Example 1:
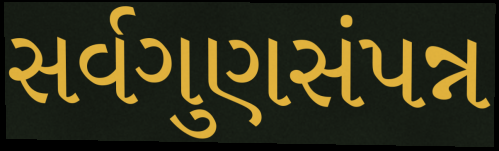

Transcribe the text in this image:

સર્વગુણસંપન્ન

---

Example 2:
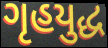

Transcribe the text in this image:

ગૃહયુદ્ધ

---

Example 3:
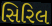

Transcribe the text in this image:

સિરિલ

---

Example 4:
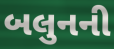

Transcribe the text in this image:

બલુનની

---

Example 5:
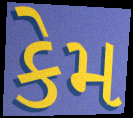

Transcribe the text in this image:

કેમ